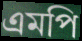
এমপি